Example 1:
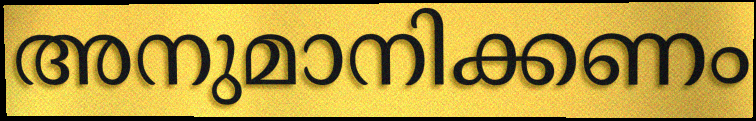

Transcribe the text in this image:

അനുമാനിക്കണം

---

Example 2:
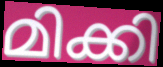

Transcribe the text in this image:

മിക്കി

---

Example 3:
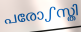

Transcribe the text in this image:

പരോഽസ്തി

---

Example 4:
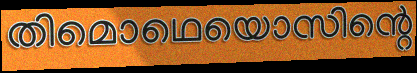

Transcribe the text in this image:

തിമൊഥെയൊസിന്റെ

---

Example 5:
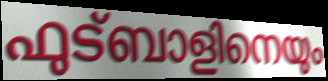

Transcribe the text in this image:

ഫുട്ബാളിനെയും